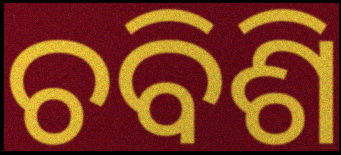
ଚବିଶି